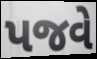
પજવે